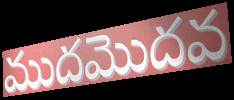
ముదమొదవ